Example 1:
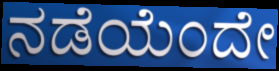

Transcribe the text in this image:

ನಡೆಯೆಂದೇ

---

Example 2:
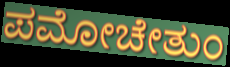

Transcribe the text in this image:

ಪಮೋಚೇತುಂ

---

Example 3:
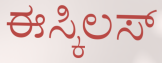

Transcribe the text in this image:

ಈಸ್ಕಿಲಸ್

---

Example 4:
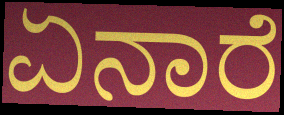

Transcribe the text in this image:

ಏನಾರೆ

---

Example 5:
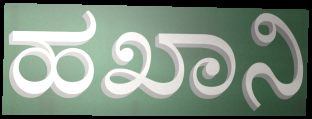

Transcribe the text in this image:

ಹಖಾನಿ